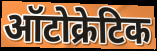
ऑटोक्रेटिक